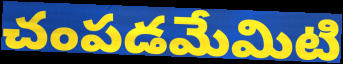
చంపడమేమిటి